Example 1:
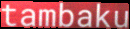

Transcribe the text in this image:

tambaku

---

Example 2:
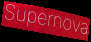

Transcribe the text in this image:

Supernova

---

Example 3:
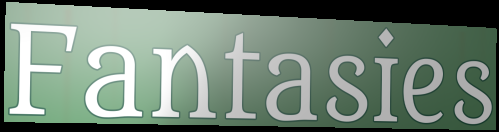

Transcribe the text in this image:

Fantasies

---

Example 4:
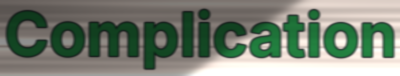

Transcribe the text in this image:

Complication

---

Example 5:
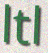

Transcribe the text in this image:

ltl